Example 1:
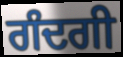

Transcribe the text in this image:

ਗੰਦਗੀ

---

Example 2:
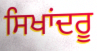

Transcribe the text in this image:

ਸਿਖਾਂਦਰੂ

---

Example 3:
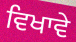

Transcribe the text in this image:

ਵਿਖਾਵੇ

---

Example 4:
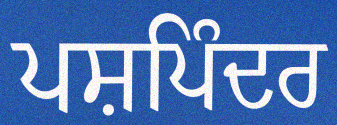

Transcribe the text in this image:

ਪਸ਼ਪਿੰਦਰ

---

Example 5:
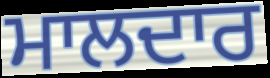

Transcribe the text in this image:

ਮਾਲਦਾਰ